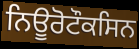
ਨਿਊਰੋਟੌਕਸਿਨ